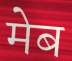
मेब